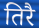
तिरै